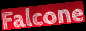
Falcone